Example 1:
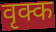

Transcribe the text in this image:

वृक्क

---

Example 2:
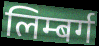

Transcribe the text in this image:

लिम्बर्ग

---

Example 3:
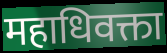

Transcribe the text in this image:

महाधिवक्ता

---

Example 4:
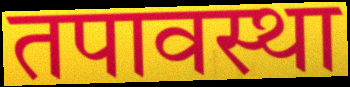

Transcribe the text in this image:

तपावस्था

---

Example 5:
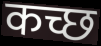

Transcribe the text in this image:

कच्छ